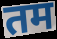
तम